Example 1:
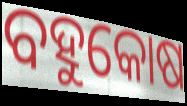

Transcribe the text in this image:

ବହୁକୋଷ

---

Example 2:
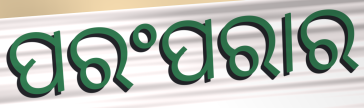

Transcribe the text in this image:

ପରଂପରାର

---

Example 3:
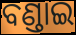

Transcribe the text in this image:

ବଣ୍ଡାଇ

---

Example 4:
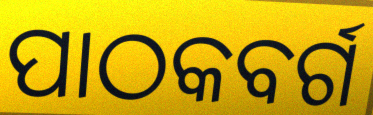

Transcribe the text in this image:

ପାଠକବର୍ଗ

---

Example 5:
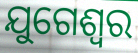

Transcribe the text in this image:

ଯୁଗେଶ୍ଵର